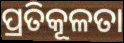
ପ୍ରତିକୂଳତା